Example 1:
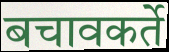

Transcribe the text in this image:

बचावकर्ते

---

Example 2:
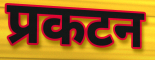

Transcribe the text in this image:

प्रकटन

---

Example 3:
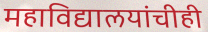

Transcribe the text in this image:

महाविद्यालयांचीही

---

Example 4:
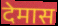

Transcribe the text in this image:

देमास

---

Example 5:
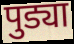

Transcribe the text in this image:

पुड्या